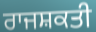
ਰਾਜਸ਼ਕਤੀ